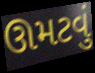
ઊમટવું